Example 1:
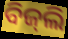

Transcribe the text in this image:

ବିଜ୍‍ଲି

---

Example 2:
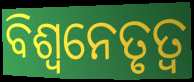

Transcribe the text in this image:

ବିଶ୍ୱନେତୃତ୍ୱ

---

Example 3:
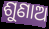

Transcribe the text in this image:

ଶୁଣାଅ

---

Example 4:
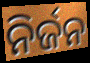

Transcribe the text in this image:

ନିର୍ଜନ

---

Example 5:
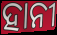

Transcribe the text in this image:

ହାନୀ